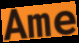
Ame